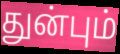
துன்பும்